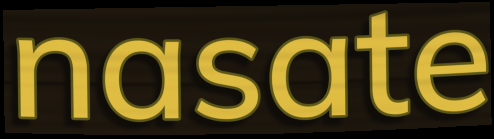
nasate